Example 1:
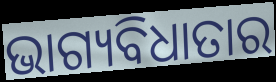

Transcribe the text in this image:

ଭାଗ୍ୟବିଧାତାର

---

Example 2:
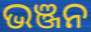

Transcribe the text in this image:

ଭଞ୍ଜନ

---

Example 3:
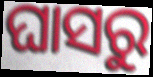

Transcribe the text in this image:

ଘାସରୁ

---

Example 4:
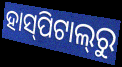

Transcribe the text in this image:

ହାସ୍‍ପିଟାଲ୍‍ରୁ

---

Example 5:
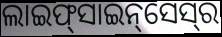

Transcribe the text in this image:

ଲାଇଫ୍‌ସାଇନ୍‌ସେସ୍‌ର